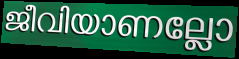
ജീവിയാണല്ലോ